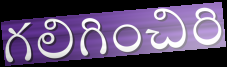
గలిగించిరి